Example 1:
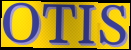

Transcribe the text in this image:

OTIS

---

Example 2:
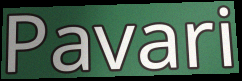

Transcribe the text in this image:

Pavari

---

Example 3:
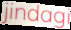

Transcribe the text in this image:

jindagi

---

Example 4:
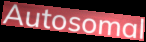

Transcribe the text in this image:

Autosomal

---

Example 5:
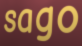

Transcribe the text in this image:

sago